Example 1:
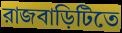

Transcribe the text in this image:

রাজবাড়িটিতে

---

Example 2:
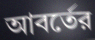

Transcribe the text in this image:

আবর্তের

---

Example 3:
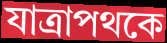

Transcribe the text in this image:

যাত্রাপথকে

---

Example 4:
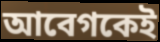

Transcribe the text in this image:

আবেগকেই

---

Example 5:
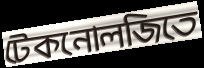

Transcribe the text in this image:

টেকনোলজিতে